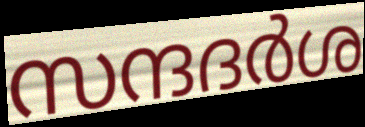
സന്ദദർശ